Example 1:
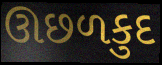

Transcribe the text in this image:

ઊછળકુદ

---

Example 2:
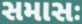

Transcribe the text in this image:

સમાસઃ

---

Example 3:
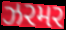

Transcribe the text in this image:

ઝરમર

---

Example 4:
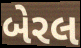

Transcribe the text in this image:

બેરલ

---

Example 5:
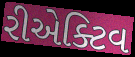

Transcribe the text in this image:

રીએક્ટિવ